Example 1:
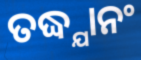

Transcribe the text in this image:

ତଦ୍ଧ୍ଯାନଂ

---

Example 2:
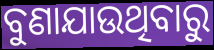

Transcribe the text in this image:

ବୁଣାଯାଉଥିବାରୁ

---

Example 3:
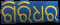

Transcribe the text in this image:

ଗିରିଧର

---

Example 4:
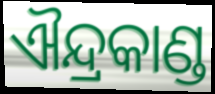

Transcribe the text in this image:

ଐନ୍ଦ୍ରକାଣ୍ଡ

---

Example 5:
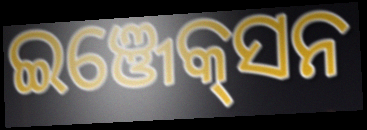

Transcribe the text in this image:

ଇଞ୍ଜେକ୍‌ସନ